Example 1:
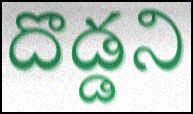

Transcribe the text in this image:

దొడ్డని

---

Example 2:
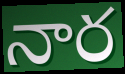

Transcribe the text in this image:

నార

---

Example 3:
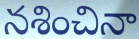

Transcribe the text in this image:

నశించినా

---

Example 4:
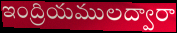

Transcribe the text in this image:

ఇంద్రియములద్వారా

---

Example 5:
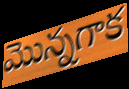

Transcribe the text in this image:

మొన్నగాక